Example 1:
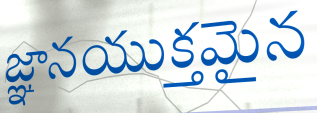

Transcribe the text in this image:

జ్ఞానయుక్తమైన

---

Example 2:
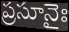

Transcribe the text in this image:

ప్రసూనైః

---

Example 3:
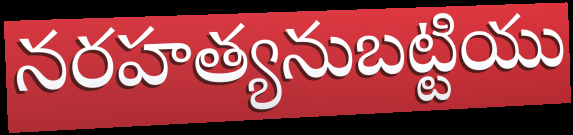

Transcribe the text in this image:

నరహత్యనుబట్టియు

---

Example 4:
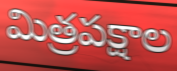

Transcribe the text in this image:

మిత్రపక్షాల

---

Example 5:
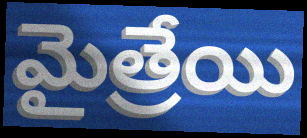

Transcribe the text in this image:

మైత్రేయి